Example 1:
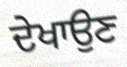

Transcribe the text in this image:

ਦੇਖਾਉਣ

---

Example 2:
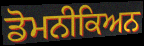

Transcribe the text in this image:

ਡੋਮਨੀਕਿਅਨ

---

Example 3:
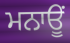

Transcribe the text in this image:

ਮਨਾਊਂ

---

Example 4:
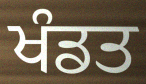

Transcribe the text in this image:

ਖੰਡਤ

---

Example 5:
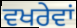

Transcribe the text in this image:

ਵਖਰੇਵਾਂ